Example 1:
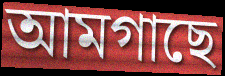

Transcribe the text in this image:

আমগাছে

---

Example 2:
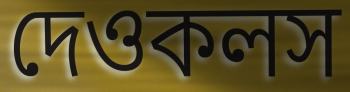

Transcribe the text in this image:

দেওকলস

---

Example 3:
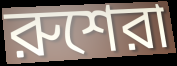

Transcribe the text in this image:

রুশেরা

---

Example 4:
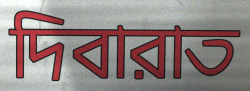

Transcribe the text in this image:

দিবারাত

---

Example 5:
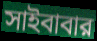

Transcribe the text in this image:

সাইবাবার